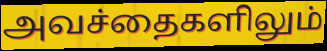
அவச்தைகளிலும்